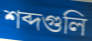
শব্দগুলি